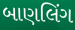
બાણલિંગ